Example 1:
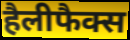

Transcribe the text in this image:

हैलीफैक्स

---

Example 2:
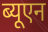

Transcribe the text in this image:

ब्यूएन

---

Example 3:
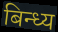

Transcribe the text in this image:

बिन्ध्य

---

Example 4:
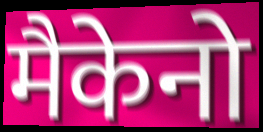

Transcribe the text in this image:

मैकेनो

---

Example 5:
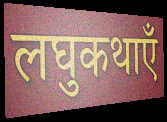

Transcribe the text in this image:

लघुकथाएँ